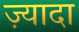
ज़्यादा